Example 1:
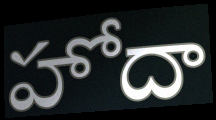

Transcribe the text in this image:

హోదా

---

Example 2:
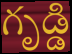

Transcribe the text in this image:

గృడ్డి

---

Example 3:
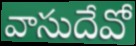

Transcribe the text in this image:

వాసుదేవో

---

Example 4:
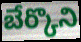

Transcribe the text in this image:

బేర్కొని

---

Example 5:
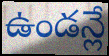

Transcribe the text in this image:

ఉండన్లే